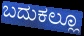
ಬದುಕಲ್ಲೂ